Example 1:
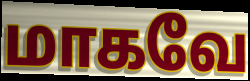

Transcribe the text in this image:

மாகவே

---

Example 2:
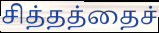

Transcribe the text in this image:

சித்தத்தைச்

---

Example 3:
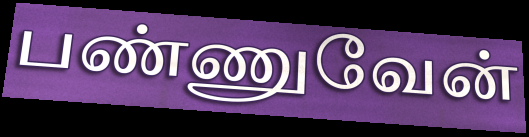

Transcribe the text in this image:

பண்ணுவேன்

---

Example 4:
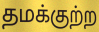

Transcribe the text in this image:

தமக்குற்ற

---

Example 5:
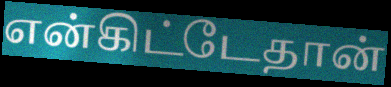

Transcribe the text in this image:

என்கிட்டேதான்